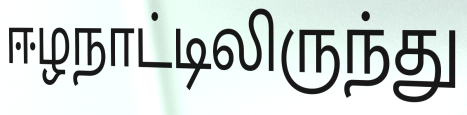
ஈழநாட்டிலிருந்து